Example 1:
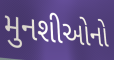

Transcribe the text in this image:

મુનશીઓનો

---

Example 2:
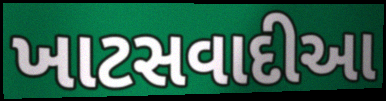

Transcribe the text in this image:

ખાટસવાદીઆ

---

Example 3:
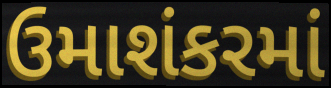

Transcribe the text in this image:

ઉમાશંકરમાં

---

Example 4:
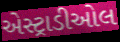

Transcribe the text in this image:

એસ્ટ્રાડીઓલ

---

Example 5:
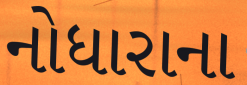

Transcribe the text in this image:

નોધારાના